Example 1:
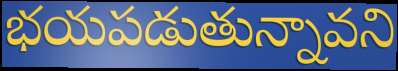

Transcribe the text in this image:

భయపడుతున్నావని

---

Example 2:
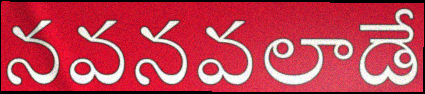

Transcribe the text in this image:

నవనవలాడే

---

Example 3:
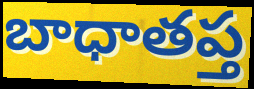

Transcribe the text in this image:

బాధాతప్త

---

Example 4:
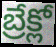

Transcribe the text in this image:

బ్రేక్లో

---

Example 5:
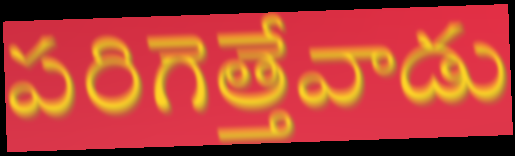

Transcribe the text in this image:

పరిగెత్తేవాడు